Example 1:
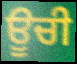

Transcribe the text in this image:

ਊਚੀ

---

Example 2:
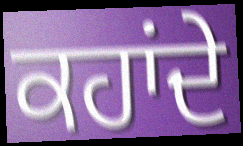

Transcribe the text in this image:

ਕਹਾਂਦੇ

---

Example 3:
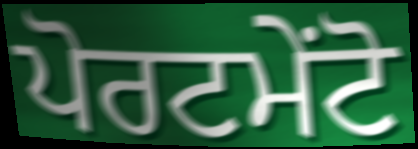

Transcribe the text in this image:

ਪੋਰਟਮੇਂਟੋ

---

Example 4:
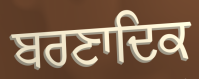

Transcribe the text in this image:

ਬਰਣਾਦਿਕ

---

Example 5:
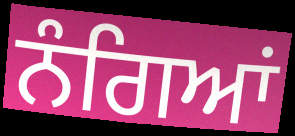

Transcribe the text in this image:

ਨੰਗਿਆਂ